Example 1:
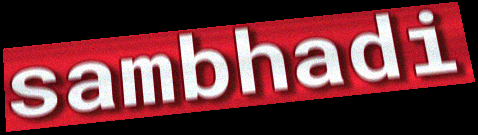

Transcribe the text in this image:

sambhadi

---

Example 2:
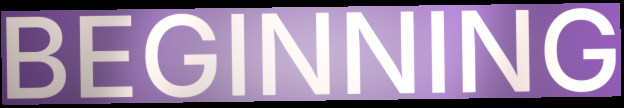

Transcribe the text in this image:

BEGINNING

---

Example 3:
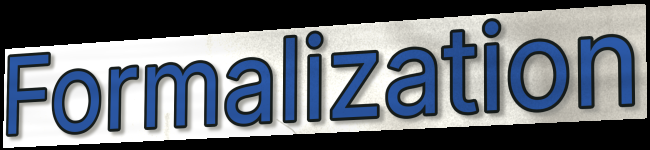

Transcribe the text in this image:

Formalization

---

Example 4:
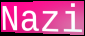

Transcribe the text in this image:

Nazi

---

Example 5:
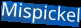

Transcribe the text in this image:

Mispickel